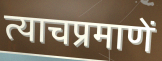
त्याचप्रमाणें